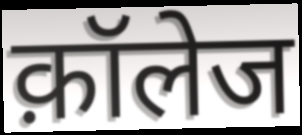
क़ॉलेज